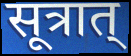
सूत्रात्